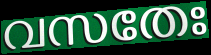
വസതേഃ